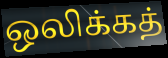
ஒலிக்கத்